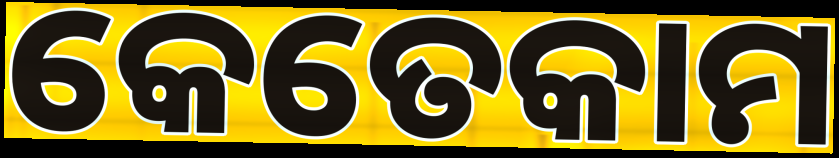
କେତେକାମ